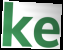
ke